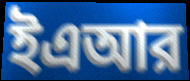
ইএআর